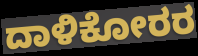
ದಾಳಿಕೋರರ